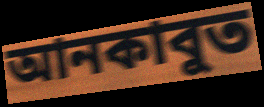
আনকাবুত